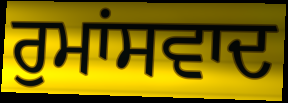
ਰੁਮਾਂਸਵਾਦ